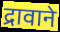
द्रावाने